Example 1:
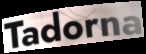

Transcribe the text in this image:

Tadorna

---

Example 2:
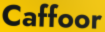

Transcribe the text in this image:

Caffoor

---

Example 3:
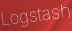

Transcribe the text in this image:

Logstash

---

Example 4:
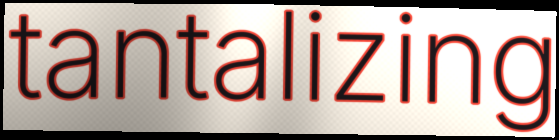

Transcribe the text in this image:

tantalizing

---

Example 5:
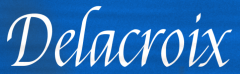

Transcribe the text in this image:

Delacroix